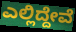
ಎಲ್ಲಿದ್ದೇವೆ